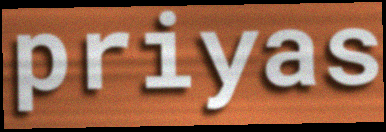
priyas